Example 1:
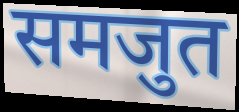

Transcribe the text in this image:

समजुत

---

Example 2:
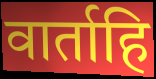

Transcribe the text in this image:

वार्ताहि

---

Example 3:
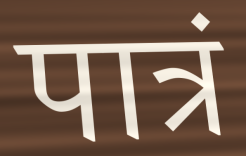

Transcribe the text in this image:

पात्रं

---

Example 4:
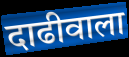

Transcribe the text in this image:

दाढीवाला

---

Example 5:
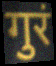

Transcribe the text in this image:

गुरं